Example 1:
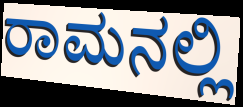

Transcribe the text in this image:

ರಾಮನಲ್ಲಿ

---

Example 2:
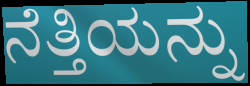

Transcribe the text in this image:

ನೆತ್ತಿಯನ್ನು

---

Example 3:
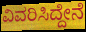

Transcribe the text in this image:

ವಿವರಿಸಿದ್ದೇನೆ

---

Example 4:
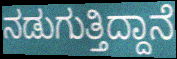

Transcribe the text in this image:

ನಡುಗುತ್ತಿದ್ದಾನೆ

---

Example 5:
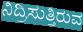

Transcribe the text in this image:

ನಿದ್ರಿಸುತ್ತಿರುವ